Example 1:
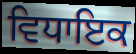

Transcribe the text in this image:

ਵਿਧਾਇਕ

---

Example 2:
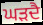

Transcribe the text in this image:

ਘੜਦੈ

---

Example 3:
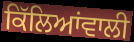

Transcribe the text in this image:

ਕਿੱਲਿਆਂਵਾਲੀ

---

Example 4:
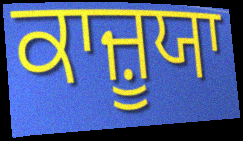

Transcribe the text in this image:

ਕਾਜ਼ੂਯਾ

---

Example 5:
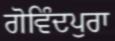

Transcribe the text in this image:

ਗੋਵਿੰਦਪੁਰਾ